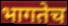
भागतेच